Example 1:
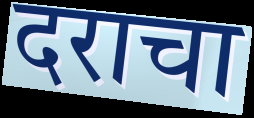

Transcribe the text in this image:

दराचा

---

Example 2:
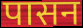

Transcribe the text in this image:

पासन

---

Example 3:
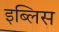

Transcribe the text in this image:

इब्लिस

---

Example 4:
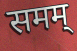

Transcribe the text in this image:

समम्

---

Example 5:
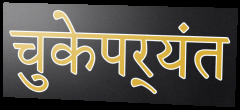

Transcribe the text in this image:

चुकेपर्यंत